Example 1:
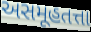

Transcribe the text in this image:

અસમૂહતત્તા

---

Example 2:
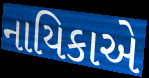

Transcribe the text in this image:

નાયિકાએ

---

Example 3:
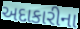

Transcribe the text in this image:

અદાકારીના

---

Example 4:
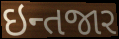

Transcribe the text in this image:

ઇન્તજાર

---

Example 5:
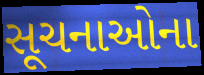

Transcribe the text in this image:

સૂચનાઓના